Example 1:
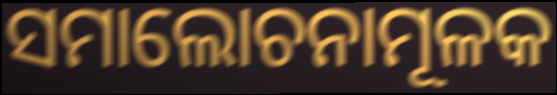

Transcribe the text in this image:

ସମାଲୋଚନାମୂଳକ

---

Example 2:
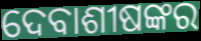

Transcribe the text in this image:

ଦେବାଶୀଷଙ୍କର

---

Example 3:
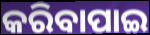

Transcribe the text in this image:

କରିବାପାଇ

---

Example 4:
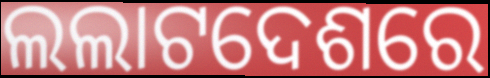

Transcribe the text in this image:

ଲଲାଟଦେଶରେ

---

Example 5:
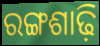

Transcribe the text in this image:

ରଙ୍ଗଶାଢ଼ି